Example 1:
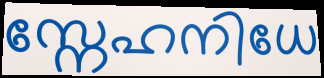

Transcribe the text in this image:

സ്നേഹനിധേ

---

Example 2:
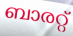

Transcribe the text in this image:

ബാരറ്റ്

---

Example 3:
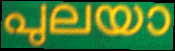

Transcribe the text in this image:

പുലയാ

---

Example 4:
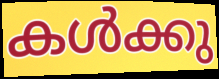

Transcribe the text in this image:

കൾക്കു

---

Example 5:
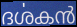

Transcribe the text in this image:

ദൎശകൻ